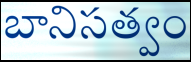
బానిసత్వం